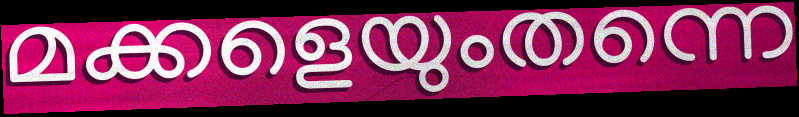
മക്കളെയുംതന്നെ